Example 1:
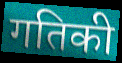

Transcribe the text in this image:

गतिकी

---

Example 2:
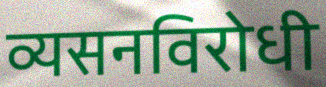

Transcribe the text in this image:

व्यसनविरोधी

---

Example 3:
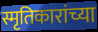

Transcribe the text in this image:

स्मृतिकारांच्या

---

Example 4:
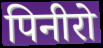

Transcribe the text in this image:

पिनीरो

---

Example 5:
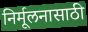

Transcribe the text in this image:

निर्मूलनासाठी